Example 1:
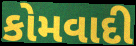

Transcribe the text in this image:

કોમવાદી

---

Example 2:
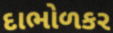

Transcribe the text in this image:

દાભોળકર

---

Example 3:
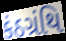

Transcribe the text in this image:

કંઠગ્રંથિ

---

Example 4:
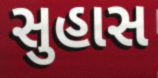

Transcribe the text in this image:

સુહાસ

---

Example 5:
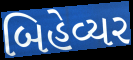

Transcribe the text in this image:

બિહેવ્યર